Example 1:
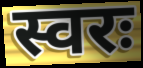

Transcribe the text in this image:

स्वरः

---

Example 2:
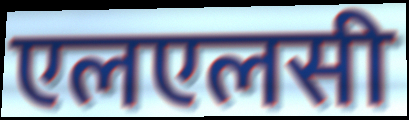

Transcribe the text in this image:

एलएलसी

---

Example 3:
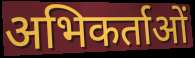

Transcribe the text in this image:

अभिकर्ताओं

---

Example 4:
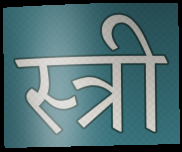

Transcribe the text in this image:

स्त्री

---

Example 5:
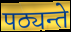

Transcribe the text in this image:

पठ्यन्ते